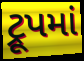
ટ્રૂપમાં